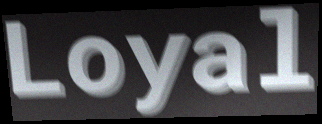
Loyal